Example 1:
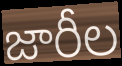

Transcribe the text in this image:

జారీల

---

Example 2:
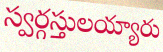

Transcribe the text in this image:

స్వర్గస్తులయ్యారు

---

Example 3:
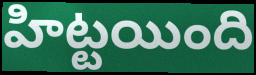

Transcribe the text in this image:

హిట్టయింది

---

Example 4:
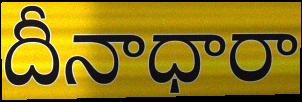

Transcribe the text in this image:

దీనాధారా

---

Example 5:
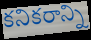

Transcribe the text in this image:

కనికరాన్ని